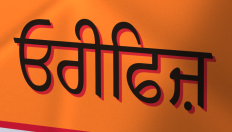
ਓਰੀਫਿਜ਼